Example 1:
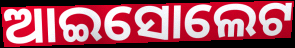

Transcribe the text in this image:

ଆଇସୋଲେଟ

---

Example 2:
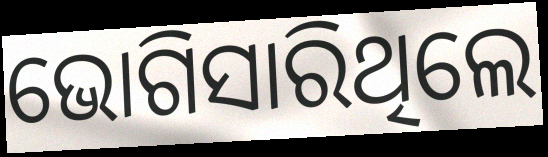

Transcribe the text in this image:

ଭୋଗିସାରିଥିଲେ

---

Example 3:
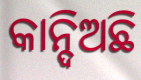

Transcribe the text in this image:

କାନ୍ଦିଅଛି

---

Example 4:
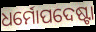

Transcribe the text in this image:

ଧର୍ମୋପଦେଷ୍ଟା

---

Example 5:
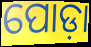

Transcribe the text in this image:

ପୋଡ଼ା